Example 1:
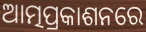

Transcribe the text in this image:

ଆତ୍ମପ୍ରକାଶନରେ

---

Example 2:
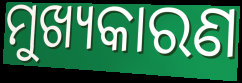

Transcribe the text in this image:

ମୁଖ୍ୟକାରଣ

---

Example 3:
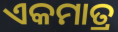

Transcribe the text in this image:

ଏକମାତ୍ର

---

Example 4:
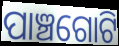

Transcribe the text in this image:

ପାଞ୍ଚଗୋଟି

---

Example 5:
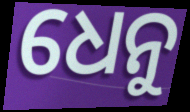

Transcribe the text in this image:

ଧେନୁ